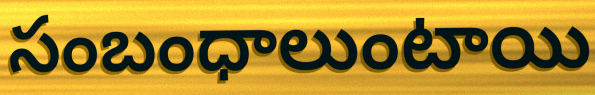
సంబంధాలుంటాయి